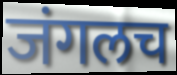
जंगलच